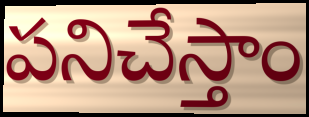
పనిచేస్తాం